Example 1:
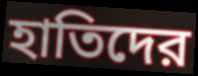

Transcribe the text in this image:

হাতিদের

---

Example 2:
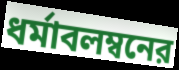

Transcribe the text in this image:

ধর্মাবলম্বনের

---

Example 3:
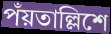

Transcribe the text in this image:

পঁয়তাল্লিশে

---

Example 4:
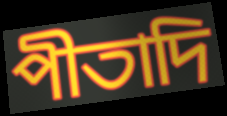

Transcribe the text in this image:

পীতাদি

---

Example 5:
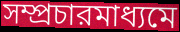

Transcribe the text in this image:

সম্প্রচারমাধ্যমে